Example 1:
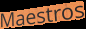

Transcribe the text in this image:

Maestros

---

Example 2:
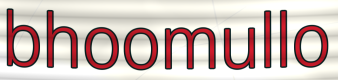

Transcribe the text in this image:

bhoomullo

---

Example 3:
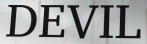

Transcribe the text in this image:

DEVIL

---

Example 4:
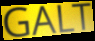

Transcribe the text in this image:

GALT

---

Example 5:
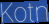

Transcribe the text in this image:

Kotn